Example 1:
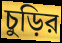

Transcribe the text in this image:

চুড়ির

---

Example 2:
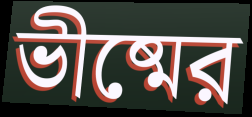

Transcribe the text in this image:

ভীষ্মের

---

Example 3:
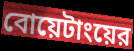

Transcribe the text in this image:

বোয়েটাংয়ের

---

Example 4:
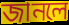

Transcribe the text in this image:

জানলে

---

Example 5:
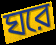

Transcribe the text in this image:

ঘরে